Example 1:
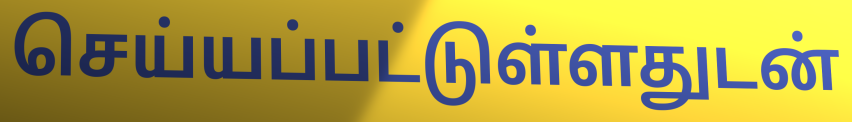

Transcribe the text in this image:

செய்யப்பட்டுள்ளதுடன்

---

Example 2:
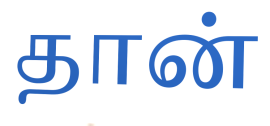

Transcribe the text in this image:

தான்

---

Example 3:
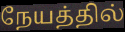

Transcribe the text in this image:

நேயத்தில்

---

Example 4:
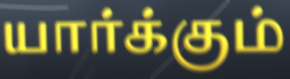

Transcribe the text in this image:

யார்க்கும்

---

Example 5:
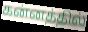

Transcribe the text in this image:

கன்னத்தில்